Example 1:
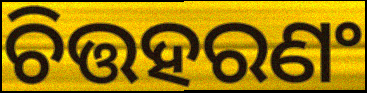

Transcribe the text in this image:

ଚିତ୍ତହରଣଂ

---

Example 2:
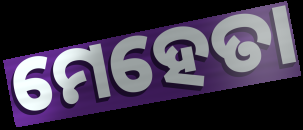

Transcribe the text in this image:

ମେହେତା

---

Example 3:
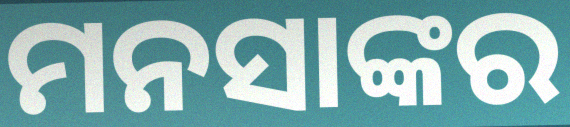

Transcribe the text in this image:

ମନସାଙ୍କର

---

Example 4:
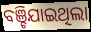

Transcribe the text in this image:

ବଞ୍ଚିଯାଇଥିଲା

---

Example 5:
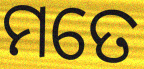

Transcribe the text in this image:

ମତେ